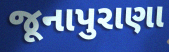
જૂનાપુરાણા